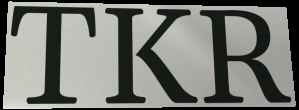
TKR